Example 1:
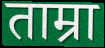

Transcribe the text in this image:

ताम्रा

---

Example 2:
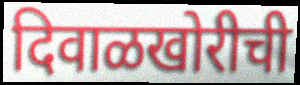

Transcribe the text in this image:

दिवाळखोरीची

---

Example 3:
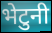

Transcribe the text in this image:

भेटुनी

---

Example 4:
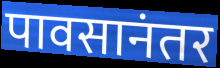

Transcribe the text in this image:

पावसानंतर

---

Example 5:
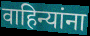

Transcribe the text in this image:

वाहिन्यांना